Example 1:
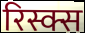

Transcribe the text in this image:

रिस्क्स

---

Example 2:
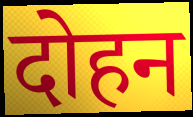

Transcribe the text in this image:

दोहन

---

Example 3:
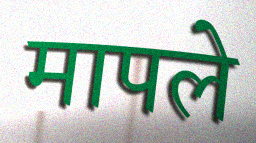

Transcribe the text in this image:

मापले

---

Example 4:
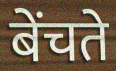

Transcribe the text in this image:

बेंचते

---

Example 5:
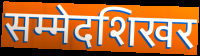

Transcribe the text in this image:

सम्मेदशिखर